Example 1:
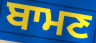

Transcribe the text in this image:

ਬਾਮਣ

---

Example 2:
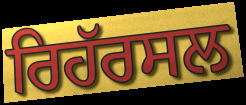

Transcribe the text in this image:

ਰਿਹੱਰਸਲ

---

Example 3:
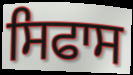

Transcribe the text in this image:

ਸਿਫਾਸ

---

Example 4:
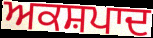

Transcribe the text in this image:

ਅਕਸ਼ਪਾਦ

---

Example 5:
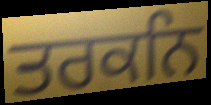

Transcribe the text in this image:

ਤਰਕਨਿ